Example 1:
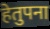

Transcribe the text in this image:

हेतुपना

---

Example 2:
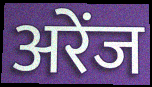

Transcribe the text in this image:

अरेंज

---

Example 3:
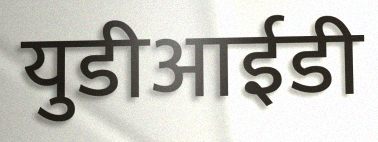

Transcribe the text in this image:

युडीआईडी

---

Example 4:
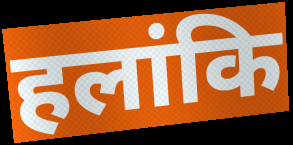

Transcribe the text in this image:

हलांकि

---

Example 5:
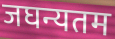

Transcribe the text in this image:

जघन्यतम